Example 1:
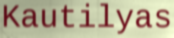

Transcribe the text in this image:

Kautilyas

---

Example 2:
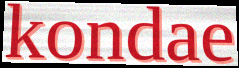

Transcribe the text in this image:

kondae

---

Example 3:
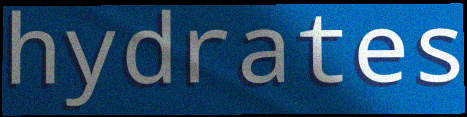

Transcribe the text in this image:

hydrates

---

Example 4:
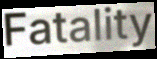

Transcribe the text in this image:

Fatality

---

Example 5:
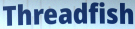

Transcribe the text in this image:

Threadfish